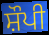
ਸ਼ੌਪੀ